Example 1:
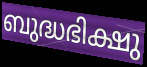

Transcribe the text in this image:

ബുദ്ധഭിക്ഷു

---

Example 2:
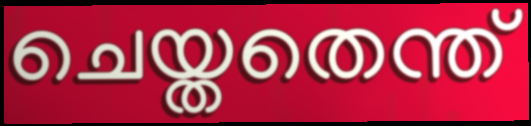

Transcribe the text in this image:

ചെയ്തതെന്ത്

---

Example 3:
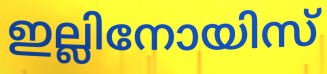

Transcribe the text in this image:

ഇല്ലിനോയിസ്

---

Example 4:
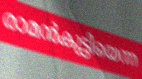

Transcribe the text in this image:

രാമൻകുട്ടിയെന്ന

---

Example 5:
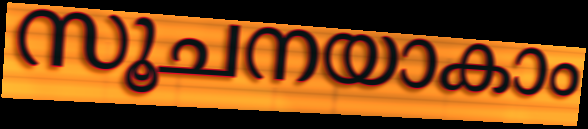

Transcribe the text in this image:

സൂചനയാകാം